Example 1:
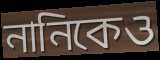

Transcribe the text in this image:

নানিকেও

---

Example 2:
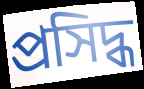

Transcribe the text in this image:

প্রসিদ্ধ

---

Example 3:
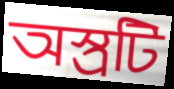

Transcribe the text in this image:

অস্ত্রটি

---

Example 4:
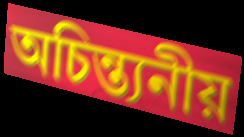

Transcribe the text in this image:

অচিন্ত্যনীয়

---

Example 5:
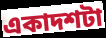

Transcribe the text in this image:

একাদশটা